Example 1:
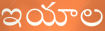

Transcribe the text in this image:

ఇయాల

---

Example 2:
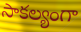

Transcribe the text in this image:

సాకల్యంగా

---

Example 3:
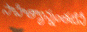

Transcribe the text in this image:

సాహిత్యాన్నంతటినీ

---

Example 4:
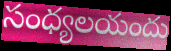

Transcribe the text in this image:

సంధ్యలయందు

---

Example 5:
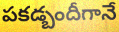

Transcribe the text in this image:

పకడ్బందీగానే